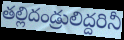
తల్లిదండ్రులిద్దరినీ